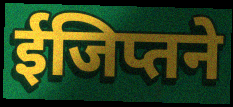
ईजिप्तने